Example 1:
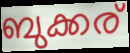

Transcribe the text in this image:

ബുക്കര്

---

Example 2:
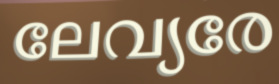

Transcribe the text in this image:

ലേവ്യരേ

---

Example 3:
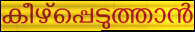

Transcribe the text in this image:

കീഴ്പ്പെടുത്താൻ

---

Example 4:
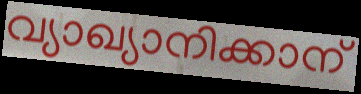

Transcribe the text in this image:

വ്യാഖ്യാനിക്കാന്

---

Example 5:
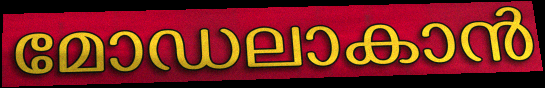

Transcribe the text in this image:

മോഡലാകാൻ